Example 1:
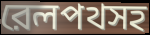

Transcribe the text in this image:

রেলপথসহ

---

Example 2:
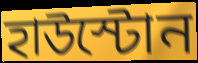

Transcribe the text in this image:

হাউস্টোন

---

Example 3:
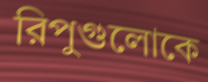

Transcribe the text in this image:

রিপুগুলোকে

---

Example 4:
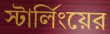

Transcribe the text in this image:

স্টার্লিংয়ের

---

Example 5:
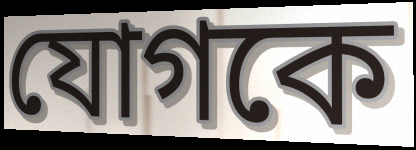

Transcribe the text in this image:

যোগকে